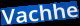
Vachhe